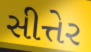
સીત્તેર